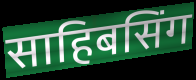
साहिबसिंग